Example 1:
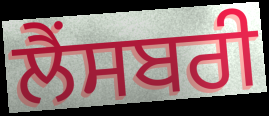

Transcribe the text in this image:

ਲੈਂਸਬਰੀ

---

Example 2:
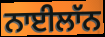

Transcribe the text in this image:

ਨਾਈਲਾੱਨ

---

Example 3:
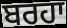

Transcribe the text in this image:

ਬਰਹਾ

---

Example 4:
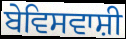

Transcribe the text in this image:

ਬੇਵਿਸਵਾਸ਼ੀ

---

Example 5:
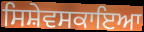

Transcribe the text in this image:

ਸਿਸ਼ੇਵਸਕਾਇਆ